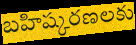
బహిష్కరణలకు